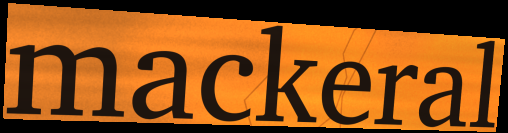
mackeral